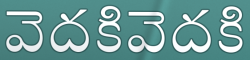
వెదకివెదకి